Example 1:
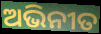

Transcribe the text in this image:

ଅଭିନୀତ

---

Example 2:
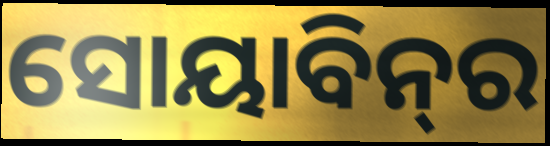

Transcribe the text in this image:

ସୋୟାବିନ୍‌ର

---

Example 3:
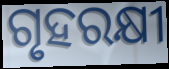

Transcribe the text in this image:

ଗୃହରକ୍ଷୀ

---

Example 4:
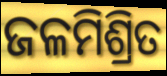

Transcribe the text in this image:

ଜଳମିଶ୍ରିତ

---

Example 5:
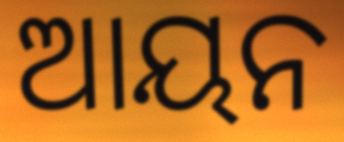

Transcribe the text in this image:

ଆୟନ